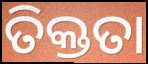
ତିକ୍ତତା